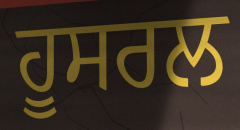
ਹੂਸਰਲ